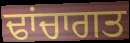
ਢਾਂਚਾਗਤ